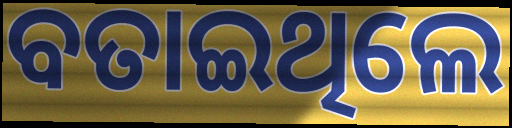
ବତାଇଥିଲେ